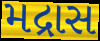
મદ્રાસ